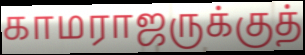
காமராஜருக்குத்